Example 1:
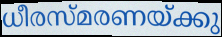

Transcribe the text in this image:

ധീരസ്മരണയ്ക്കു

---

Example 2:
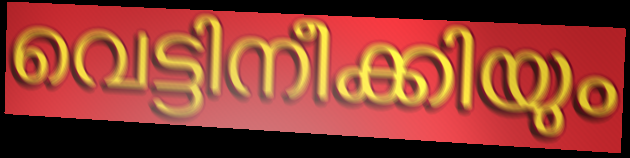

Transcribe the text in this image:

വെട്ടിനീക്കിയും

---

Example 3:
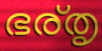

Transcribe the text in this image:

ഭര്തൃ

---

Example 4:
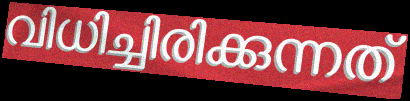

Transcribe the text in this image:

വിധിച്ചിരിക്കുന്നത്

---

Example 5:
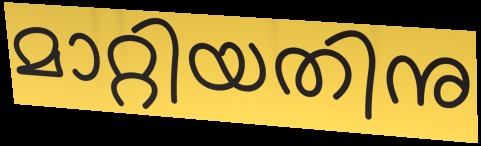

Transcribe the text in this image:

മാറ്റിയതിനു